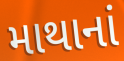
માથાનાં